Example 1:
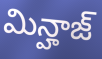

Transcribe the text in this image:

మిన్హాజ్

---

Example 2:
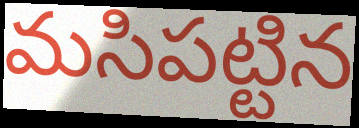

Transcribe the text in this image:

మసిపట్టిన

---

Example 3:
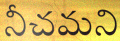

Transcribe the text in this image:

నీచమని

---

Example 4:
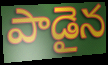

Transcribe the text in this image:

పాడైన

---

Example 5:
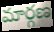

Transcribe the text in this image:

మార్గణ